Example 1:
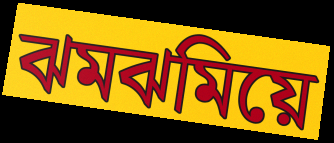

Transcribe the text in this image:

ঝমঝমিয়ে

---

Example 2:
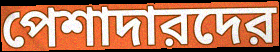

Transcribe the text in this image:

পেশাদারদের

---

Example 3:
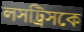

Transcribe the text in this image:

লসট্রিসকে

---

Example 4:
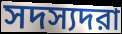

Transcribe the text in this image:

সদস্যদরা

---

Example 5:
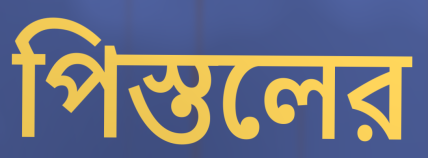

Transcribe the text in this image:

পিস্তলের